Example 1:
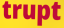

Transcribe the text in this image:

trupt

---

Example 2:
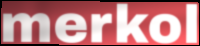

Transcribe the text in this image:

merkol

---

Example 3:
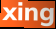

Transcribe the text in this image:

xing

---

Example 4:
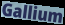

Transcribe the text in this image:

Gallium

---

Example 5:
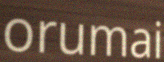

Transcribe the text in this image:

orumai